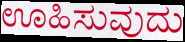
ಊಹಿಸುವುದು